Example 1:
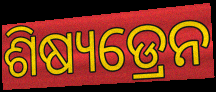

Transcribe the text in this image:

ଶିଷ୍ୟଡ୍ରେନ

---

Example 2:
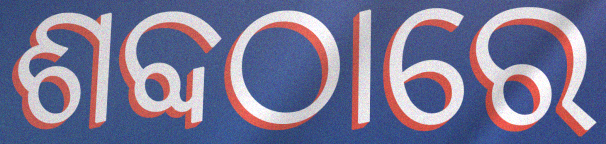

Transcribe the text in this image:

ଶବ୍ଦଠାରେ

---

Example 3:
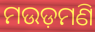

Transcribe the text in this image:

ମଉଡ଼ମଣି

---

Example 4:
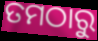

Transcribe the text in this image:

ତମଠାରୁ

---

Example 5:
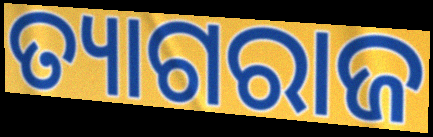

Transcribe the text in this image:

ତ୍ୟାଗରାଜ